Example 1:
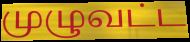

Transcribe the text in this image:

முழுவட்ட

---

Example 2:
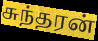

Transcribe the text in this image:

சுந்தரன்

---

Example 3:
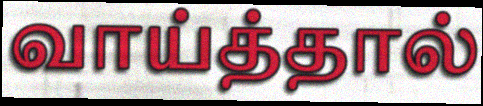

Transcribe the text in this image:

வாய்த்தால்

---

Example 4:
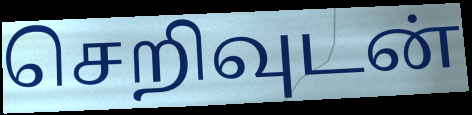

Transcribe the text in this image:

செறிவுடன்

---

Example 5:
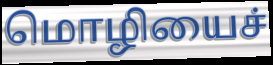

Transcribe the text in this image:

மொழியைச்